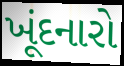
ખૂંદનારો